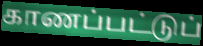
காணப்பட்டுப்